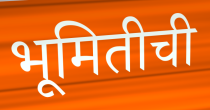
भूमितीची